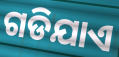
ଗଡିଯାଏ